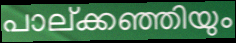
പാല്ക്കഞ്ഞിയും